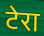
टेरा